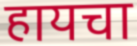
हायचा